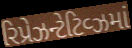
રિપ્રેઝન્ટેટિવ્ઝમાં